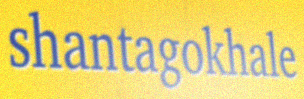
shantagokhale